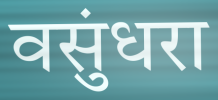
वसुंधरा